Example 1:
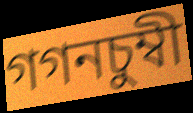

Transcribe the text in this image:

গগনচুম্বী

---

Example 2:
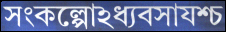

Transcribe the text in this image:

সংকল্পোঽধ্যবসাযশ্চ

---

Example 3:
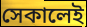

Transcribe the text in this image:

সেকালেই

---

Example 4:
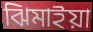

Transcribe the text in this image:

ঝিমাইয়া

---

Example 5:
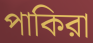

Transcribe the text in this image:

পাকিরা